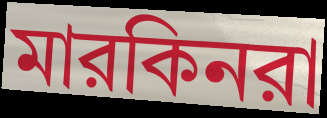
মারকিনরা